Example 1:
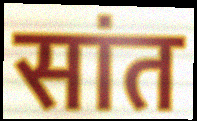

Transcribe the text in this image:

सांत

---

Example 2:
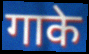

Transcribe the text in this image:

गाके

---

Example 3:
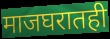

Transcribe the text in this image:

माजघरातही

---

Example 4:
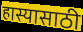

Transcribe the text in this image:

हास्यासाठी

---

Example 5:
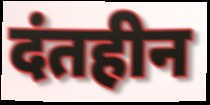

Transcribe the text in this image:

दंतहीन